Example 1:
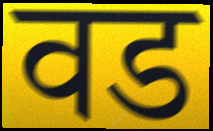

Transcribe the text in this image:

वड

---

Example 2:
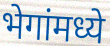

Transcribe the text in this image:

भेगांमध्ये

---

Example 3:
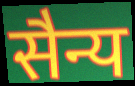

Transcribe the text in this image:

सैन्‍य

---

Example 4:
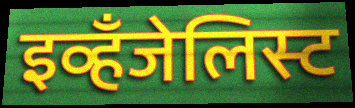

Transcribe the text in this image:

इव्हँजेलिस्ट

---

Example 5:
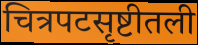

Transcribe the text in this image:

चित्रपटसृष्टीतली